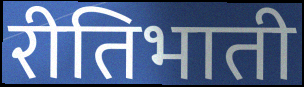
रीतिभाती